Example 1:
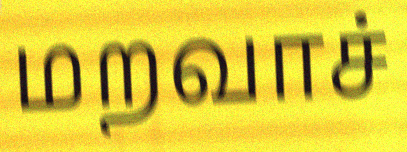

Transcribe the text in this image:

மறவாச்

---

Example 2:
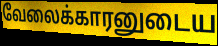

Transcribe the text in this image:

வேலைக்காரனுடைய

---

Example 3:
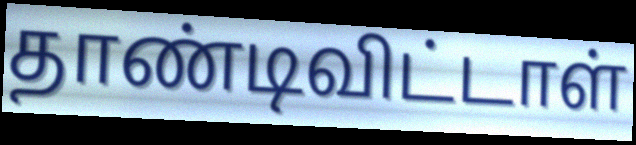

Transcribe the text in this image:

தாண்டிவிட்டாள்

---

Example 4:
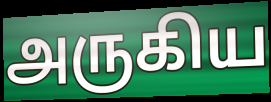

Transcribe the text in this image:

அருகிய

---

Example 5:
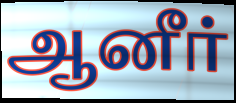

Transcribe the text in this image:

ஆனீர்